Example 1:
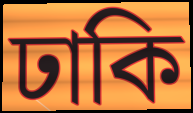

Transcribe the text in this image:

ঢাকি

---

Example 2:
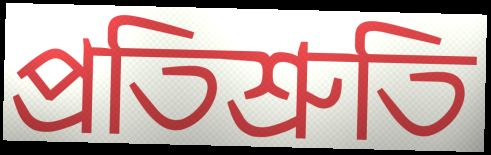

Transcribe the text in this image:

প্ৰতিশ্ৰুতি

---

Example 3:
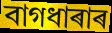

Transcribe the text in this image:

বাগধাৰাৰ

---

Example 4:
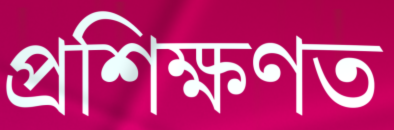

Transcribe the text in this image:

প্ৰশিক্ষণত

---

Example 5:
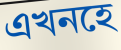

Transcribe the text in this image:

এখনহে